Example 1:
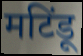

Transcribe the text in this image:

मटिंडू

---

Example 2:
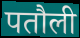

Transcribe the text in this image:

पतौली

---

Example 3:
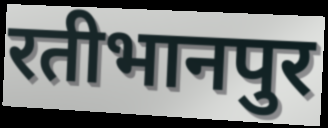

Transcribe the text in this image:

रतीभानपुर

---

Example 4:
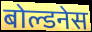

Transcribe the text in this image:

बोल्डनेस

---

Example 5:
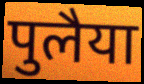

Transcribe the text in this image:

पुलैया